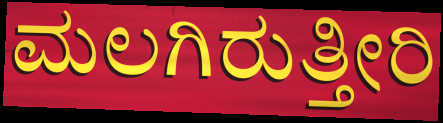
ಮಲಗಿರುತ್ತೀರಿ